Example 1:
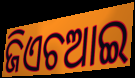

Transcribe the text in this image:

ଜିଏଚଆଇ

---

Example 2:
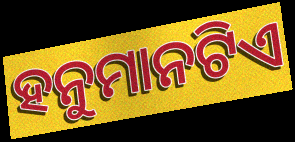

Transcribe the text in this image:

ହନୁମାନଟିଏ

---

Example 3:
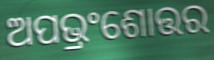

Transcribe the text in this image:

ଅପଭ୍ରଂଶୋତ୍ତର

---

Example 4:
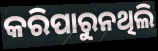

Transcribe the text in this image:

କରିପାରୁନଥିଲି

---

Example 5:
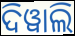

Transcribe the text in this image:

ଦିୱାଲି